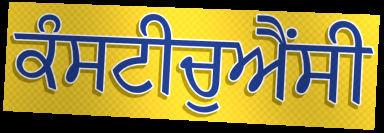
ਕੰਸਟੀਚੁਐਂਸੀ